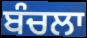
ਬੰਚਲਾ